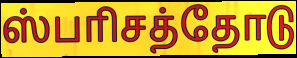
ஸ்பரிசத்தோடு